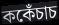
ককেঁচাচ